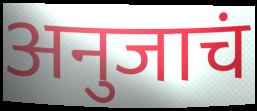
अनुजाचं